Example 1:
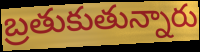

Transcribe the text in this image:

బ్రతుకుతున్నారు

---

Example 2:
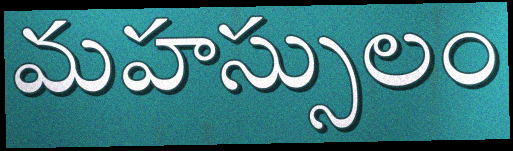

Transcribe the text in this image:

మహస్సులం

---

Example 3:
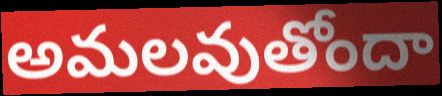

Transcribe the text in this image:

అమలవుతోందా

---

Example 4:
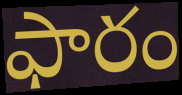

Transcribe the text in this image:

ఫారం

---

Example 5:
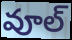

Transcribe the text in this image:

వూల్